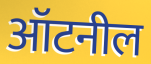
ऑटनील